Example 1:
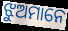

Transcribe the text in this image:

ଝୁଅମାନେ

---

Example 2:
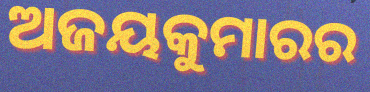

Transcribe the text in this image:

ଅଜୟକୁମାରର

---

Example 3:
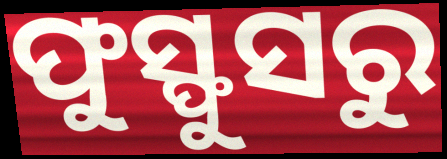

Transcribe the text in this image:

ଫୁସ୍ଫୁସରୁ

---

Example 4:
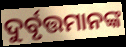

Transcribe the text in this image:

ଦୁର୍ବୃତ୍ତମାନଙ୍କ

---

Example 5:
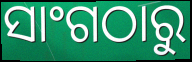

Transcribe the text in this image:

ସାଂଗଠାରୁ